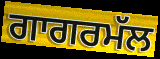
ਗਾਗਰਮੱਲ